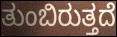
ತುಂಬಿರುತ್ತದೆ